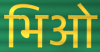
भिओ